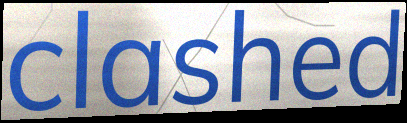
clashed